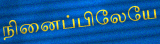
நினைப்பிலேயே